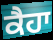
ਕੈਹਾ